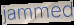
jammed